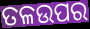
ତଳଉପର